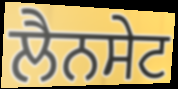
ਲੈਨਸੇਟ